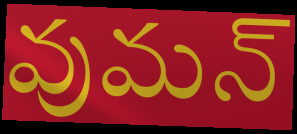
వుమన్